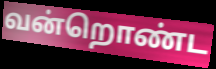
வன்றொண்ட